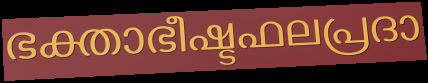
ഭക്താഭീഷ്ടഫലപ്രദാ